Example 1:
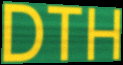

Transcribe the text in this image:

DTH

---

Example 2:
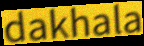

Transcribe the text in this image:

dakhala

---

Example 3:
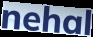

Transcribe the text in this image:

nehal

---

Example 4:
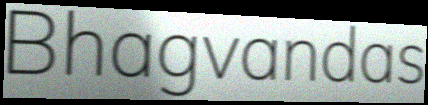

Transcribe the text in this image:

Bhagvandas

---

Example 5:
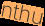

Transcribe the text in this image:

nthu